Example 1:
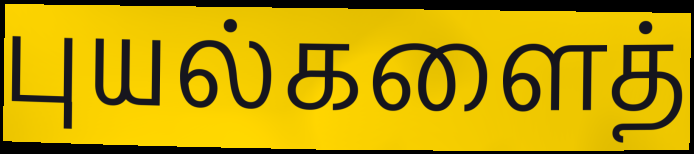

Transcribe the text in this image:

புயல்களைத்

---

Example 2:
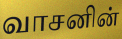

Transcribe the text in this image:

வாசனின்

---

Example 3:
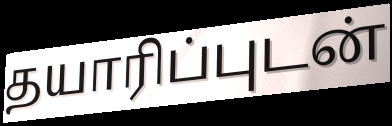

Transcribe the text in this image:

தயாரிப்புடன்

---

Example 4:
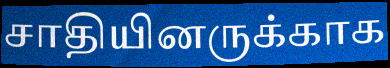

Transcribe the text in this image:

சாதியினருக்காக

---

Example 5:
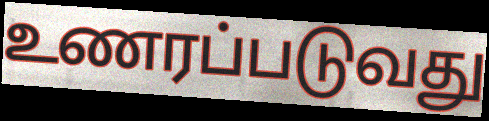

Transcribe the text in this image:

உணரப்படுவது